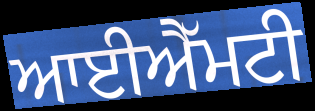
ਆਈਐੱਮਟੀ